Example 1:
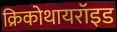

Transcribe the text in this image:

क्रिकोथायरॉइड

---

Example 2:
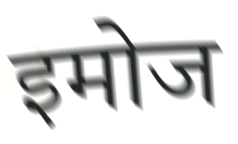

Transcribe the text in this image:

इमोज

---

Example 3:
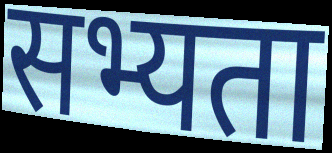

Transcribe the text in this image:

सभ्यता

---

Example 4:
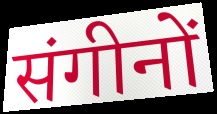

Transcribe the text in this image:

संगीनों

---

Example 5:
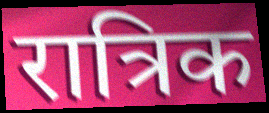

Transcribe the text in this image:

रात्रिक